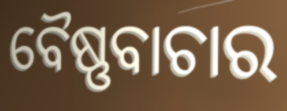
ବୈଷ୍ଣବାଚାର